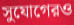
সুযোগেরও